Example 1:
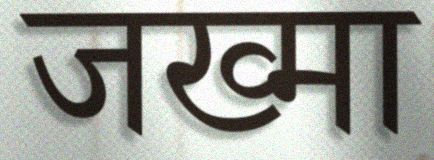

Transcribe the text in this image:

जख्मा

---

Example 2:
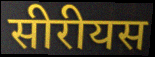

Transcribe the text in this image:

सीरीयस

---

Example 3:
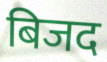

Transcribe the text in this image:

बिजद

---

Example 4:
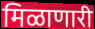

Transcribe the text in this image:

मिळाणारी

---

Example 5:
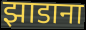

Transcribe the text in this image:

झाडाना